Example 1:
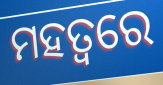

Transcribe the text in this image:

ମହତ୍ୱରେ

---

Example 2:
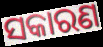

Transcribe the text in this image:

ସକାରଣ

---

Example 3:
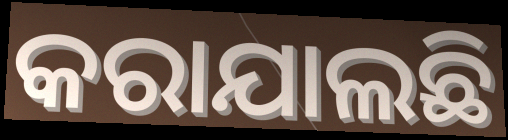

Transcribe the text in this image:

କରାଯାଲଛି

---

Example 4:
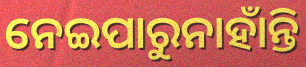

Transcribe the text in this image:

ନେଇପାରୁନାହାଁନ୍ତି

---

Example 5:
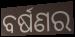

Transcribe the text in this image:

ବର୍ଷଣର